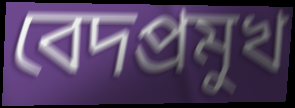
বেদপ্রমুখ